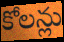
కోలన్లు